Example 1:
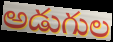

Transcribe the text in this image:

అడుగుల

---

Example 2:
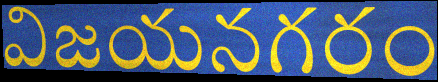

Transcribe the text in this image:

విజయనగరం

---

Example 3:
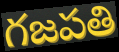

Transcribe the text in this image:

గజపతి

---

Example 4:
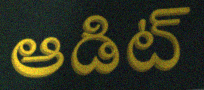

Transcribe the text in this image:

ఆడిట్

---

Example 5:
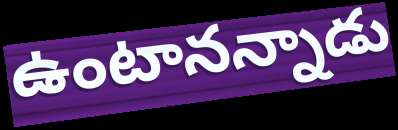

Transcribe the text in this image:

ఉంటానన్నాడు